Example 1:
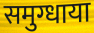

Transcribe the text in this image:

समुग्धाया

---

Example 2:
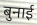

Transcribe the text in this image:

बुनाई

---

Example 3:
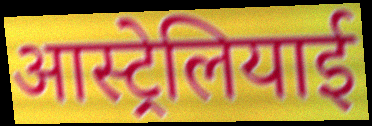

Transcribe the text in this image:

आस्ट्रेलियाई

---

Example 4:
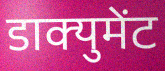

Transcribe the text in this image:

डाक्युमेंट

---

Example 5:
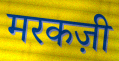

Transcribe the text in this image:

मरकज़ी